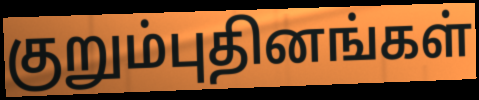
குறும்புதினங்கள்